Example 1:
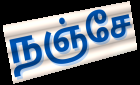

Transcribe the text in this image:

நஞ்சே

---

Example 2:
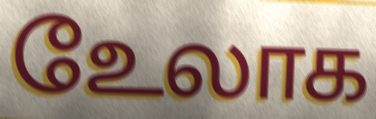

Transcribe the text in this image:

உேலாக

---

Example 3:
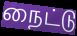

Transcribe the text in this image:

நைட்டு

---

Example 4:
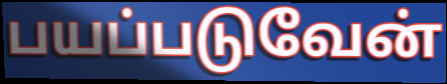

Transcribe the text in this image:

பயப்படுவேன்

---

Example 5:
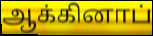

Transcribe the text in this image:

ஆக்கினாப்